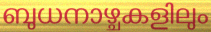
ബുധനാഴ്ചകളിലും